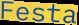
Festa